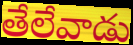
తేలేవాడు